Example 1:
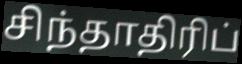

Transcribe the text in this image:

சிந்தாதிரிப்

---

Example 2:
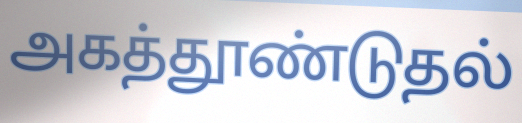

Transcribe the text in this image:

அகத்தூண்டுதல்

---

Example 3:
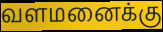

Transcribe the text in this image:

வளமனைக்கு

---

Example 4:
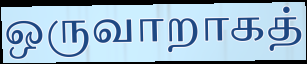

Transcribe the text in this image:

ஒருவாறாகத்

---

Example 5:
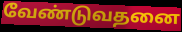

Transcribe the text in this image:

வேண்டுவதனை